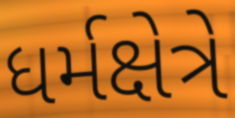
ધર્મક્ષેત્રે